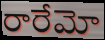
రారేమో